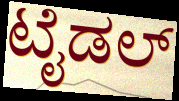
ಟೈಡಲ್